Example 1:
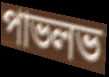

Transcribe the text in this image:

পাভলভ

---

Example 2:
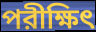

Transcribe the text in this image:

পরীক্ষিৎ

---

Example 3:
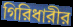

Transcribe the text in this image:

গিরিধারীর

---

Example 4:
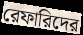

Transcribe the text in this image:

রেফারিদের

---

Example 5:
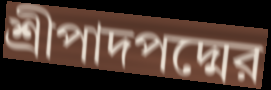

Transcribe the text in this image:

শ্রীপাদপদ্মের